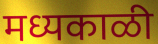
मध्यकाळी